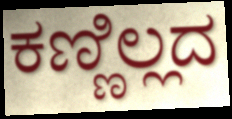
ಕಣ್ಣಿಲ್ಲದ